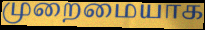
முறைமையாக